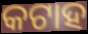
କଟାହ